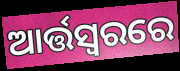
ଆର୍ତ୍ତସ୍ଵରରେ